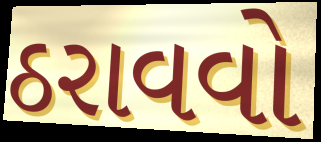
ઠરાવવો